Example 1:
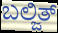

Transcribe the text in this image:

ಬಲ್ಜಿತ್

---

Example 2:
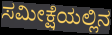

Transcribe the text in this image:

ಸಮೀಕ್ಷೆಯಲ್ಲಿನ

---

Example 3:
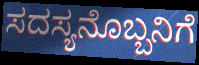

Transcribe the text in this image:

ಸದಸ್ಯನೊಬ್ಬನಿಗೆ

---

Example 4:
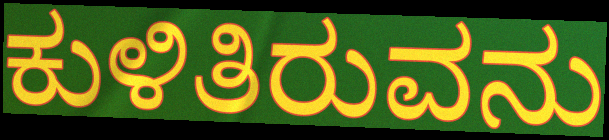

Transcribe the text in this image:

ಕುಳಿತಿರುವನು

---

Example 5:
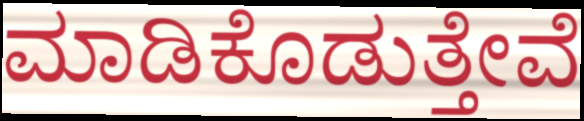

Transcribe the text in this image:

ಮಾಡಿಕೊಡುತ್ತೇವೆ